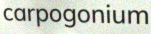
carpogonium